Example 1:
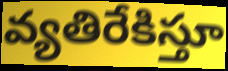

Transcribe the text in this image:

వ్యతిరేకిస్తూ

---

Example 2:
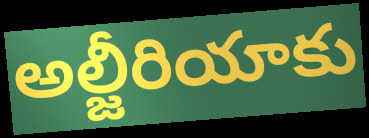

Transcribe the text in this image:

అల్జీరియాకు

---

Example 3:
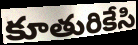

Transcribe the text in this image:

కూతురికేసి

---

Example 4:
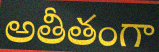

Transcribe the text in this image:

అతీతంగా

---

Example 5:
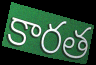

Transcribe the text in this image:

కారత